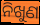
ନିଖୁଣ